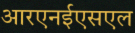
आरएनईएसएल